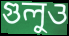
গুলুও